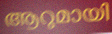
ആറുമായി